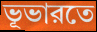
ভূভারতে